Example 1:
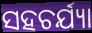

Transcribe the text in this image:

ସହଚର୍ଯ୍ୟା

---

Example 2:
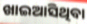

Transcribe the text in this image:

ଖାଇଆସିଥିବା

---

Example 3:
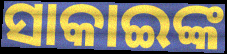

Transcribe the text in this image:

ସାକାଇଙ୍କ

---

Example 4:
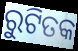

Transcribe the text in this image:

ରୁଟିତକ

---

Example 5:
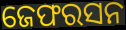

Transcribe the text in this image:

ଜେଫରସନ